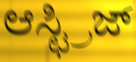
ಆಸ್ಟ್ರಿಜ್